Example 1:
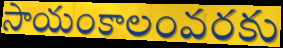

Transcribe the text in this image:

సాయంకాలంవరకు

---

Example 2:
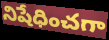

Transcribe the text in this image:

నిషేధించగా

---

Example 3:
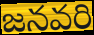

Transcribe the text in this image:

జనవరి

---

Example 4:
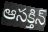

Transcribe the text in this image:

ఆసక్తిన్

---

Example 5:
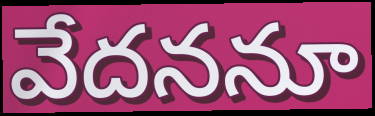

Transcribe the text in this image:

వేదననూ